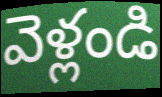
వెళ్లండి